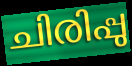
ചിരിപ്പു